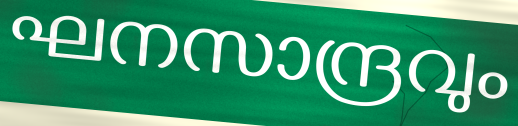
ഘനസാന്ദ്രവും